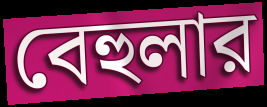
বেহুলার